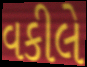
વકીલે